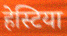
हेस्टिया